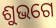
ଶୁଭଗେ